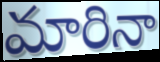
మారినా